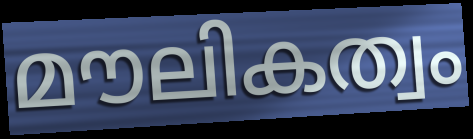
മൗലികത്വം